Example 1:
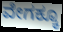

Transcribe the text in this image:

ವೇಗಕ್ಕೂ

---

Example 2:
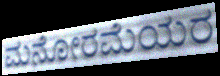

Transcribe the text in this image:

ಮನೋರಮೆಯರ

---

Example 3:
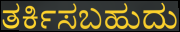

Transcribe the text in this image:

ತರ್ಕಿಸಬಹುದು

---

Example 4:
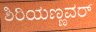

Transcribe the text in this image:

ಶಿರಿಯಣ್ಣವರ್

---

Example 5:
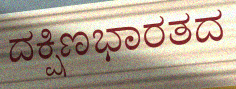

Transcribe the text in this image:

ದಕ್ಷಿಣಭಾರತದ